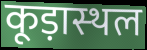
कूड़ास्थल